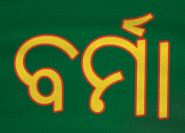
ବର୍ମା